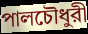
পালচৌধুরী